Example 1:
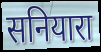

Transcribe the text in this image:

सनियारा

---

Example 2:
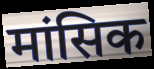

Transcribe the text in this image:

मांसिक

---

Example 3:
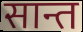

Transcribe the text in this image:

सान्त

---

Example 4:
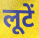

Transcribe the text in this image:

लूटें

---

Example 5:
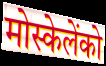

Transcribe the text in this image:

मोस्केलेंको